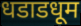
धडाडधूम